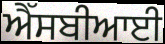
ਐੱਸਬੀਆਈ